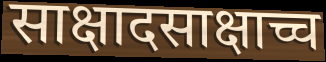
साक्षादसाक्षाच्च